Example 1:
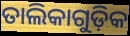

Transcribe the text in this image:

ତାଲିକାଗୁଡ଼ିକ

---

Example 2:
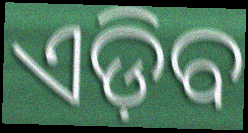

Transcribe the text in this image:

ଏଡ଼ିବ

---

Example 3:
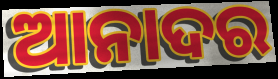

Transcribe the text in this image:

ଆନାଦର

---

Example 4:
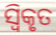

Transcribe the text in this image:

ସ୍ଵିକୃତ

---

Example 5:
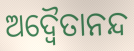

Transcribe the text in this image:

ଅଦ୍ଵୈତାନନ୍ଦ